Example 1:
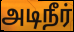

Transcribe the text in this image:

அடிநீர்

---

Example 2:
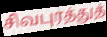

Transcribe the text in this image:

சிவபுரத்துத்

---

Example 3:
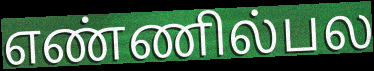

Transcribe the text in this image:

எண்ணில்பல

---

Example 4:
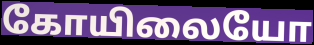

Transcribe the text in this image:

கோயிலையோ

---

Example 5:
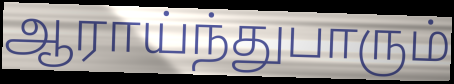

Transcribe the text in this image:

ஆராய்ந்துபாரும்